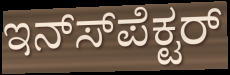
ಇನ್ಸ್‍ಪೆಕ್ಟರ್